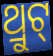
ଥ୍ରୁଟ୍